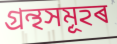
গ্ৰন্থসমূহৰ